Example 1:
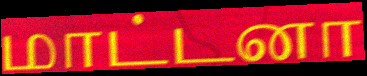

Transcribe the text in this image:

மாட்டனா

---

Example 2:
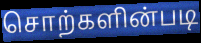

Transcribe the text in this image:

சொற்களின்படி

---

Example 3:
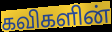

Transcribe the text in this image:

கவிகளின்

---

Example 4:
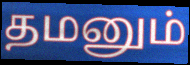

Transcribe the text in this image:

தமனும்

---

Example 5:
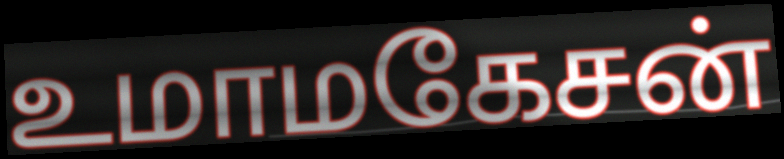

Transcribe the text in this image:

உமாமகேசன்